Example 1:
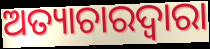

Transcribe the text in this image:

ଅତ୍ୟାଚାରଦ୍ୱାରା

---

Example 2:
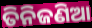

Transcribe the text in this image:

ତିନିଜଣିଆ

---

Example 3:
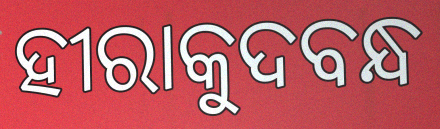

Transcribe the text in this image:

ହୀରାକୁଦବନ୍ଧ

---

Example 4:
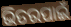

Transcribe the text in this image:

ଭିତରପାଇଁ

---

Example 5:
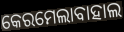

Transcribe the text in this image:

କେରମେଲାବାହାଲ